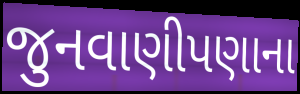
જુનવાણીપણાના